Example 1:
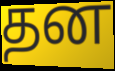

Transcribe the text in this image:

தன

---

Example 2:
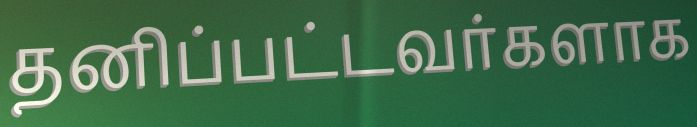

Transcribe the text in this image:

தனிப்பட்டவர்களாக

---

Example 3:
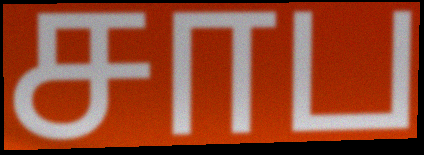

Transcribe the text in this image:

சாப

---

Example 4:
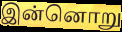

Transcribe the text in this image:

இன்னொறு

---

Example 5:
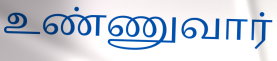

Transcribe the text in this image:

உண்ணுவார்